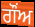
ਗੌਂਅ